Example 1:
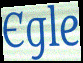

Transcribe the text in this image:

Egle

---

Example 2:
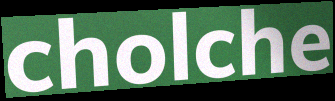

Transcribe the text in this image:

cholche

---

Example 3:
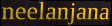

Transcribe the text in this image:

neelanjana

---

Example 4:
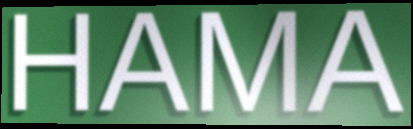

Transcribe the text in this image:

HAMA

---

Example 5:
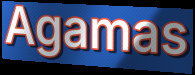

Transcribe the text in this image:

Agamas